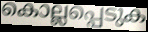
കൊല്ലപ്പെടുക